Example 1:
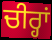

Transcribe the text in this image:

ਚੀਰ੍ਹਾਂ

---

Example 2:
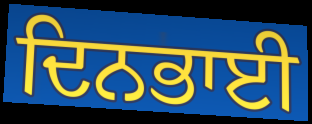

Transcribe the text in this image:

ਦਿਨਭਾਈ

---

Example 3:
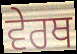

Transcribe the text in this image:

ਵੇਰਥ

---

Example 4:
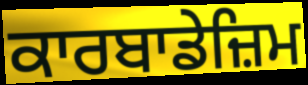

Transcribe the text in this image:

ਕਾਰਬਾਡੇਜ਼ਿਮ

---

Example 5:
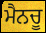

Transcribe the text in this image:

ਮੈਨਚੂ